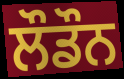
ਲੌਡੌਨ